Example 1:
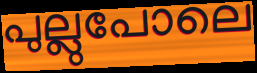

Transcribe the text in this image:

പുല്ലുപോലെ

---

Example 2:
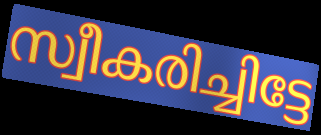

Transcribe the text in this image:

സ്വീകരിച്ചിട്ടേ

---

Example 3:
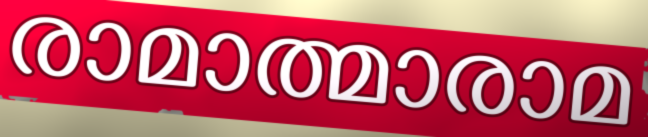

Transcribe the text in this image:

രാമാത്മാരാമ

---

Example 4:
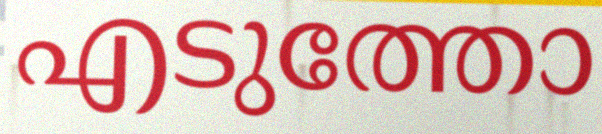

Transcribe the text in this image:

എടുത്തോ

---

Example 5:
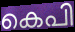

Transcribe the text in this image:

കെപി